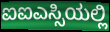
ಐಐಎಸ್ಸಿಯಲ್ಲಿ